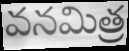
వనమిత్ర